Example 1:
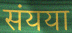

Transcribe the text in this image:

संयया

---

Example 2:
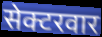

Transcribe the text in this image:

सेक्टरवार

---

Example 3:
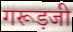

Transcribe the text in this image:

गरूड़जी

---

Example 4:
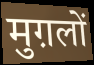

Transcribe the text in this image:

मुग़लों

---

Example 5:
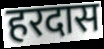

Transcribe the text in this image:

हरदास